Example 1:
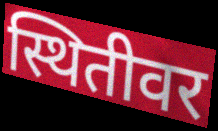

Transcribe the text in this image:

स्थितीवर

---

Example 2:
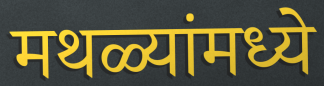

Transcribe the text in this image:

मथळ्यांमध्ये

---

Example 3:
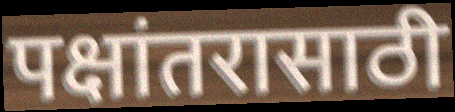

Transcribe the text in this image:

पक्षांतरासाठी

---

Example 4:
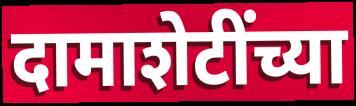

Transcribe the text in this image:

दामाशेटींच्या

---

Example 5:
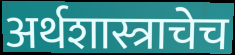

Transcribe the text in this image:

अर्थशास्त्राचेच